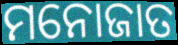
ମନୋଜାତ